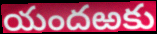
యందఱకు